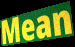
Mean